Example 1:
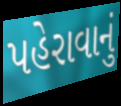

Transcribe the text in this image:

પહેરાવાનું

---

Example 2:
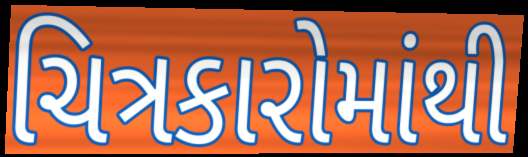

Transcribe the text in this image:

ચિત્રકારોમાંથી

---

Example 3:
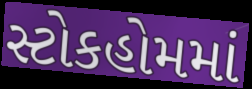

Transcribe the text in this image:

સ્ટોકહોમમાં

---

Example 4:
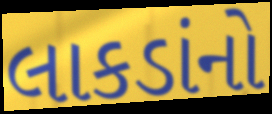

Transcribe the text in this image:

લાકડાંનો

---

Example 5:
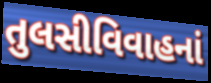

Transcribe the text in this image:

તુલસીવિવાહનાં